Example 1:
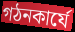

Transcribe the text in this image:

গঠনকার্যে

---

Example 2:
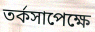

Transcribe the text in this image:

তর্কসাপেক্ষে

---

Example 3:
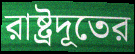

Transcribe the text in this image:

রাষ্ট্রদূতের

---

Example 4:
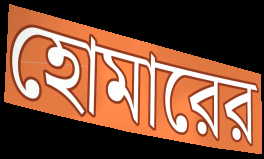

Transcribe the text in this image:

হোমারের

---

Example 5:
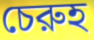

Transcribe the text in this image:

চেরুহ